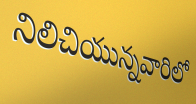
నిలిచియున్నవారిలో